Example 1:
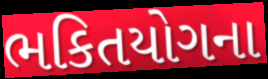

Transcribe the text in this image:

ભકિતયોગના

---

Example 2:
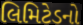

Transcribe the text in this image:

લિમિટેડનો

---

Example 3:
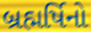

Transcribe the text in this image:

બ્રહ્મર્ષિનો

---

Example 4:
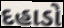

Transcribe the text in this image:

દહાડો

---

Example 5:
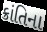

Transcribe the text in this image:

ક્રાંતિના